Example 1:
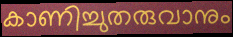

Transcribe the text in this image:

കാണിച്ചുതരുവാനും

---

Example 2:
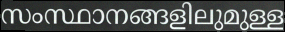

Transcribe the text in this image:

സംസ്ഥാനങ്ങളിലുമുള്ള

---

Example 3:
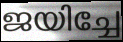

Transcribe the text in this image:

ജയിച്ചേ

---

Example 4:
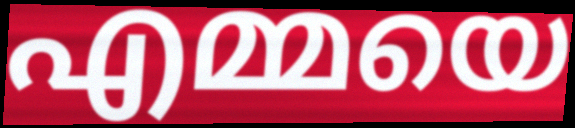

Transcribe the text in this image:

എമ്മയെ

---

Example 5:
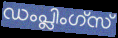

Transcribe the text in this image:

ഡംപ്ലിംഗ്സ്